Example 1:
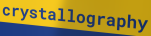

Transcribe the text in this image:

crystallography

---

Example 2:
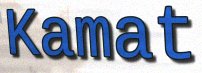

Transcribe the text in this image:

Kamat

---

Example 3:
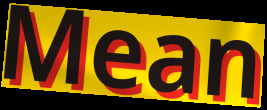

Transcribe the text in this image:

Mean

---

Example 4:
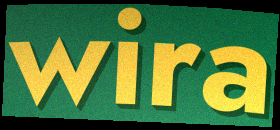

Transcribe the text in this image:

wira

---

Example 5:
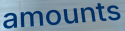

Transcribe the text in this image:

amounts